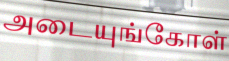
அடையுங்கோள்